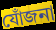
যোঁজনা